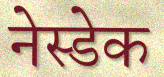
नेस्डेक